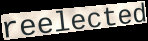
reelected